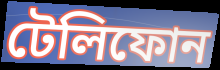
টেলিফোন